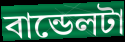
বান্ডেলটা